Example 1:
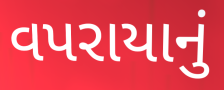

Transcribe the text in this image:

વપરાયાનું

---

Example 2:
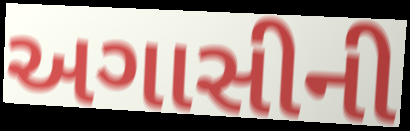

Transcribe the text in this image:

અગાસીની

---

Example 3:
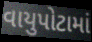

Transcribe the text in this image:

વાયુપોટામાં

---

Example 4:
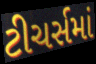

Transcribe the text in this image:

ટીચર્સમાં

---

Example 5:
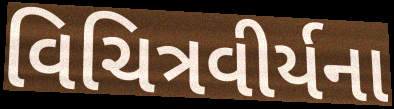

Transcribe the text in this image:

વિચિત્રવીર્યના